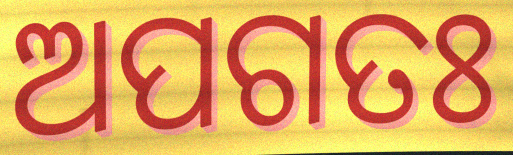
ଅପଗତଃ